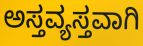
ಅಸ್ತವ್ಯಸ್ತವಾಗಿ